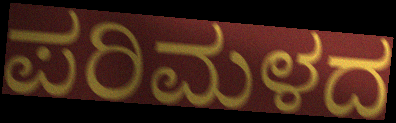
ಪರಿಮಳದ